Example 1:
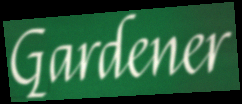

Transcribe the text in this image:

Gardener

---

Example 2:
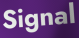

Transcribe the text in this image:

Signal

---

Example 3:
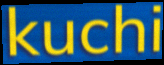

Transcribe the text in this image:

kuchi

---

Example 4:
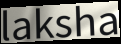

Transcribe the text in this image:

laksha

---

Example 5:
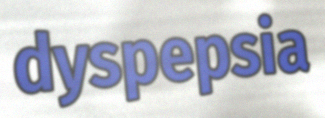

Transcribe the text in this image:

dyspepsia